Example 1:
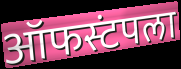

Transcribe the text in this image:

ऑफस्टंपला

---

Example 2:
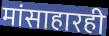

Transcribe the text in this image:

मांसाहारही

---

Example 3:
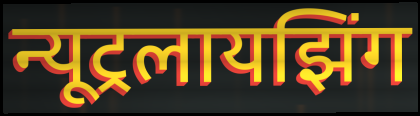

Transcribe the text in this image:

न्यूट्रलायझिंग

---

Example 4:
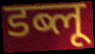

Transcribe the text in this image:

डब्लू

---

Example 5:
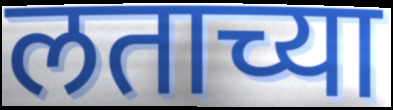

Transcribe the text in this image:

लताच्या